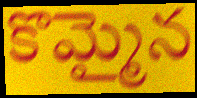
కొమ్మైన